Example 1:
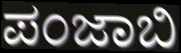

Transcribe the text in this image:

ಪಂಜಾಬಿ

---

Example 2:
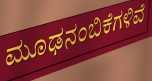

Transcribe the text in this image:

ಮೂಢನಂಬಿಕೆಗಳಿವೆ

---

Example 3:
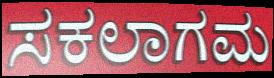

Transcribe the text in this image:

ಸಕಲಾಗಮ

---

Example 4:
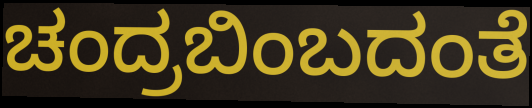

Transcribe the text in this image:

ಚಂದ್ರಬಿಂಬದಂತೆ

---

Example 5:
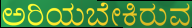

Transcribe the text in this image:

ಅರಿಯಬೇಕಿರುವ